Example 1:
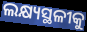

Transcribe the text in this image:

ଲକ୍ଷ୍ୟସ୍ଥଳୀକୁ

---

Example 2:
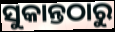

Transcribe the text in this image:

ସୁକାନ୍ତଠାରୁ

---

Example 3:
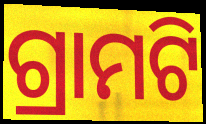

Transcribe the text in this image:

ଗ୍ରାମଟି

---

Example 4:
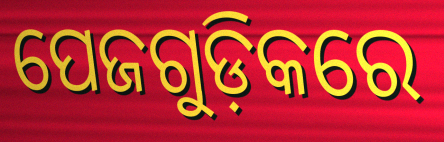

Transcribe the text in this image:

ପେଜଗୁଡ଼ିକରେ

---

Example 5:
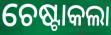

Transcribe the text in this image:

ଚେଷ୍ଟାକଲା